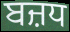
ਬਜ਼ਧ